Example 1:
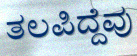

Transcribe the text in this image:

ತಲಪಿದ್ದೆವು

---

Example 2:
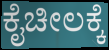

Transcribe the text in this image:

ಕೈಚೀಲಕ್ಕೆ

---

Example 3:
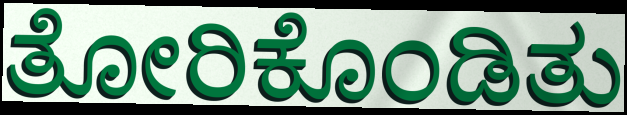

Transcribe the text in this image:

ತೋರಿಕೊಂಡಿತು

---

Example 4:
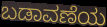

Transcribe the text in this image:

ಬಡಾವಣೆಯ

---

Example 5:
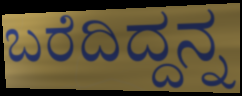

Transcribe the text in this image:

ಬರೆದಿದ್ದನ್ನ